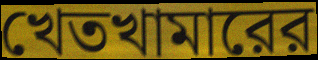
খেতখামারের